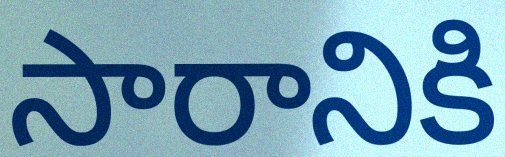
సారానికి